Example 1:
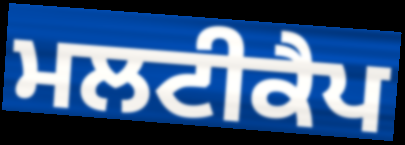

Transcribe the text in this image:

ਮਲਟੀਕੈਪ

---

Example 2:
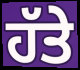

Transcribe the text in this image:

ਹੱਤੇ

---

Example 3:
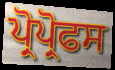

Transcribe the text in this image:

ਪ੍ਰੋਪ੍ਰੋਫਸ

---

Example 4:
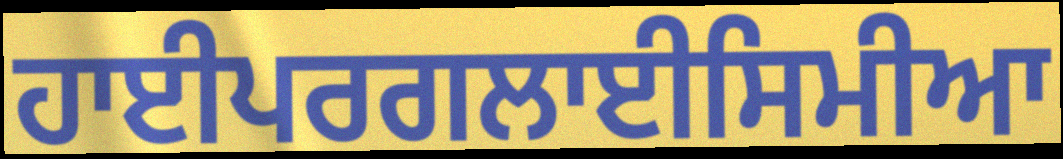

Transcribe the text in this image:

ਹਾਈਪਰਗਲਾਈਸਿਮੀਆ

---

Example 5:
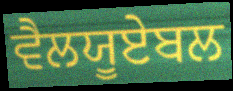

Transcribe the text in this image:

ਵੈਲਯੂਏਬਲ